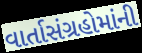
વાર્તાસંગ્રહોમાંની